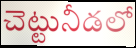
చెట్టునీడలో